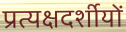
प्रत्यक्षदर्शीयों